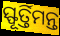
ସ୍ଫୂର୍ତ୍ତିମନ୍ତ